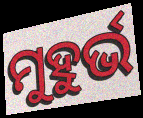
ମୁହୁର୍ଭ